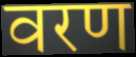
वरण